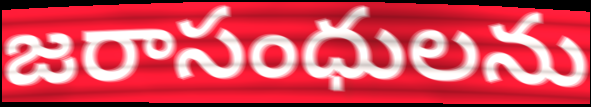
జరాసంధులను